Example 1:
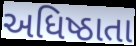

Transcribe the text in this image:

અધિષ્ઠાતા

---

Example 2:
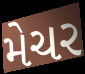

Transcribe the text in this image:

મેચર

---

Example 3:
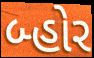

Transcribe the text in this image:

બ્હોર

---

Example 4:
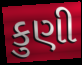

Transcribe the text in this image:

કુણી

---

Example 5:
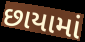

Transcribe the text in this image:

છાયામાં